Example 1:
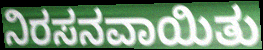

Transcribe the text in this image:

ನಿರಸನವಾಯಿತು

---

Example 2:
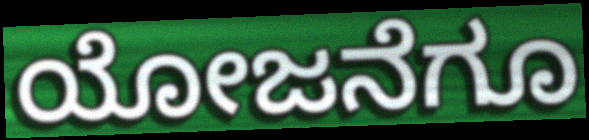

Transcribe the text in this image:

ಯೋಜನೆಗೂ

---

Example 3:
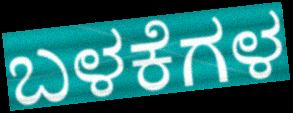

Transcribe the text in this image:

ಬಳಕೆಗಳ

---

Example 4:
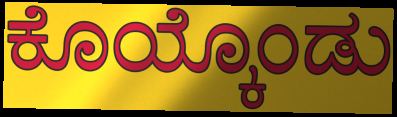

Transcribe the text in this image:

ಕೊಯ್ಕೊಂಡು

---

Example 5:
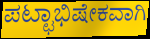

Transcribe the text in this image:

ಪಟ್ಟಾಭಿಷೇಕವಾಗಿ